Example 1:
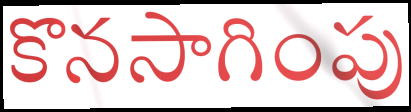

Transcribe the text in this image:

కొనసాగింపు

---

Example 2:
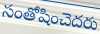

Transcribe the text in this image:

సంతోషించెదరు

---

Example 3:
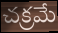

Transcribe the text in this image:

చక్రమే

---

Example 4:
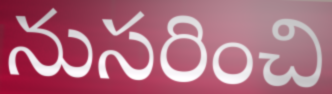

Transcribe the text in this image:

నుసరించి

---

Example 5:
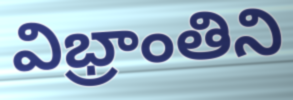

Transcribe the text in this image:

విభ్రాంతిని